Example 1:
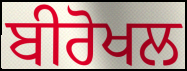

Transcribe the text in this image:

ਬੀਰੋਖਲ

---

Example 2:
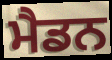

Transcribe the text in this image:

ਮੈਡਨ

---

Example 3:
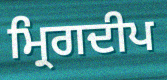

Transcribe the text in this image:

ਮ੍ਰਿਗਦੀਪ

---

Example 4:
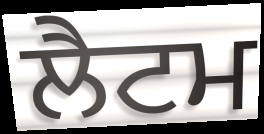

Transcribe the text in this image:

ਲੈਟਮ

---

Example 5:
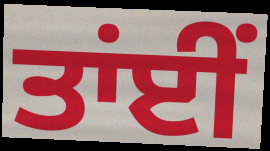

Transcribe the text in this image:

ਤਾਂਈਂ